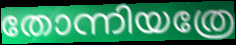
തോന്നിയത്രേ